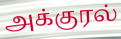
அக்குரல்